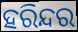
ହରିନ୍ଦର